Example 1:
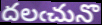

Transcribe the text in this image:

దలఁచునొ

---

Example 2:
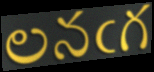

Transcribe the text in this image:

లనఁగ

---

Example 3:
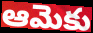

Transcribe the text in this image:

ఆమెకు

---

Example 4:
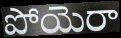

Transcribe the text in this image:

పోయెరా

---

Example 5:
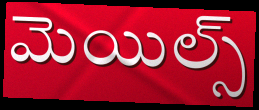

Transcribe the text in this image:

మెయిల్స్